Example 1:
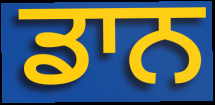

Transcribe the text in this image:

ਡਾਨ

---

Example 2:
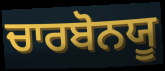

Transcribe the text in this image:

ਚਾਰਬੋਨਯੂ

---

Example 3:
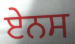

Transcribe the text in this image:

ਏਨਸ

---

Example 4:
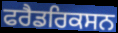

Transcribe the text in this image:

ਫਰੈਡਰਿਕਸਨ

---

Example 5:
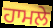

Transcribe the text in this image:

ਹਾਮਲੇ